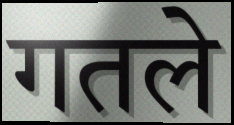
गतले